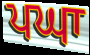
ਪਘਾ